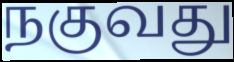
நகுவது